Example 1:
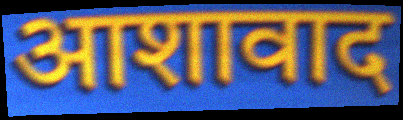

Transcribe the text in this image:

आशावाद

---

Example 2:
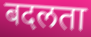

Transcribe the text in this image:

बदलता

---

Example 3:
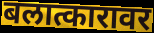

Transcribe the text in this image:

बलात्कारावर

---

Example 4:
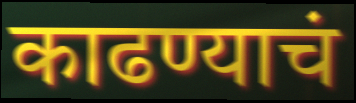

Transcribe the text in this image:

काढण्याचं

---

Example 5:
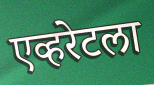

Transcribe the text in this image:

एव्हरेटला